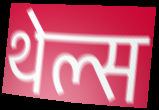
थेल्स